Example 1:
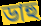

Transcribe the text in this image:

ডাহু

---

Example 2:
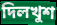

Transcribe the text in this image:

দিলখুশ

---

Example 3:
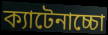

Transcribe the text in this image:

ক্যাটেনাচ্চো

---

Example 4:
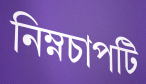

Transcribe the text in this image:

নিম্নচাপটি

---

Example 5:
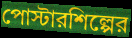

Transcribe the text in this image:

পোস্টারশিল্পের